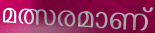
മത്സരമാണ്